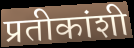
प्रतीकांशी